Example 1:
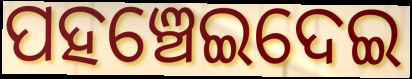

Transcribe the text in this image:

ପହଞ୍ଚେଇଦେଇ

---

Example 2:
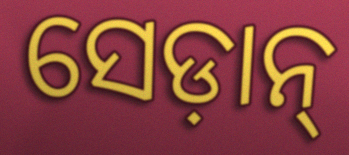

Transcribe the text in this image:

ସେଡ଼ାନ୍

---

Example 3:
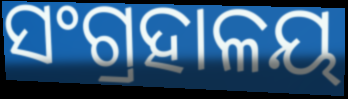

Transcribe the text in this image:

ସଂଗ୍ରହାଳୟ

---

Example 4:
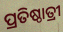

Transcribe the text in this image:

ପ୍ରତିଷ୍ଠାତ୍ରୀ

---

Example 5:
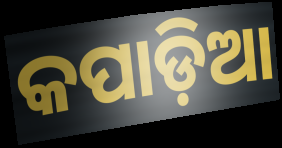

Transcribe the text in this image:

କପାଡ଼ିଆ